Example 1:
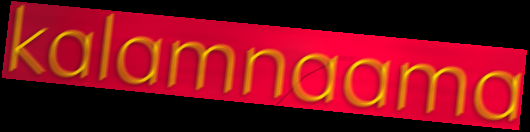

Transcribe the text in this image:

kalamnaama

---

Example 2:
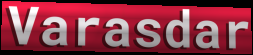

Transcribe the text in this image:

Varasdar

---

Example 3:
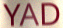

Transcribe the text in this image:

YAD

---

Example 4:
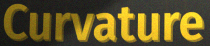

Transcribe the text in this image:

Curvature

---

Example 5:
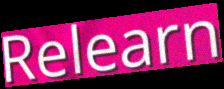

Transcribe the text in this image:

Relearn